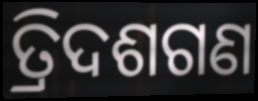
ତ୍ରିଦଶଗଣ